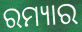
ରମ୍ୟାର